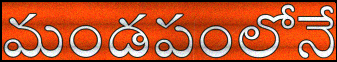
మండపంలోనే